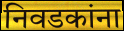
निवडकांना